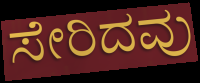
ಸೇರಿದವು